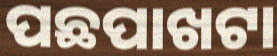
ପଛପାଖଟା